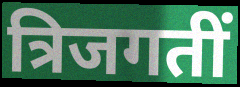
त्रिजगतीं